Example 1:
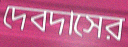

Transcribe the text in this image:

দেবদাসের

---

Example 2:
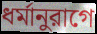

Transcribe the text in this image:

ধর্মানুরাগে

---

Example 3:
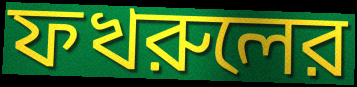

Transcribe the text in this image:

ফখরুলের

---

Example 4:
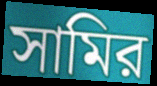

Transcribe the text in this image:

সামির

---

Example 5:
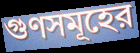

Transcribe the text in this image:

গুণসমূহের